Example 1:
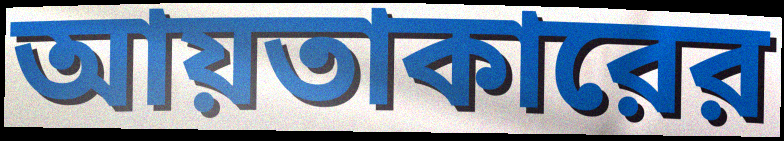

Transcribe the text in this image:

আয়তাকারের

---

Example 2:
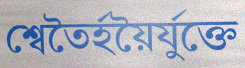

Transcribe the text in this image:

শ্বেতৈর্হয়ৈর্যুক্তে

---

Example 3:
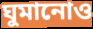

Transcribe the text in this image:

ঘুমানোও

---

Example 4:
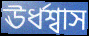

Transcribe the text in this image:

ঊর্ধশ্বাস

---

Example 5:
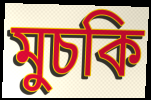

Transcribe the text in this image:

মুচকি